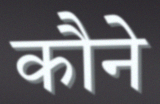
कौने